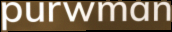
purwman